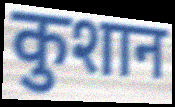
कुशान